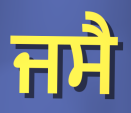
ਜਸੈ